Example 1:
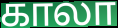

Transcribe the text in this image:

காலா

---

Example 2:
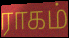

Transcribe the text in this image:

ராகம்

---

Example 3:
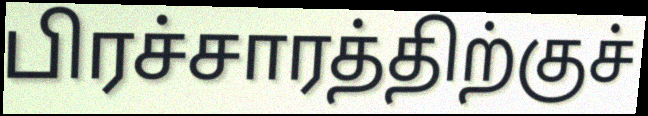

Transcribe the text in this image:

பிரச்சாரத்திற்குச்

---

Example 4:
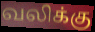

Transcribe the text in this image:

வலிக்கு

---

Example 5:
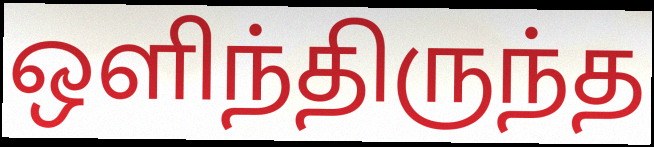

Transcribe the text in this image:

ஒளிந்திருந்த